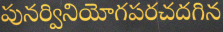
పునర్వినియోగపరచదగిన